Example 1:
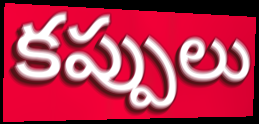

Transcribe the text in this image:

కప్పులు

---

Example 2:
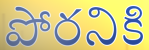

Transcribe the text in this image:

పోరనికి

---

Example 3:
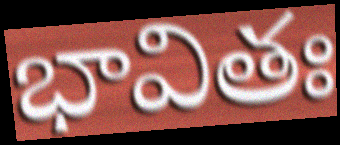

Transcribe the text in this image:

భావితః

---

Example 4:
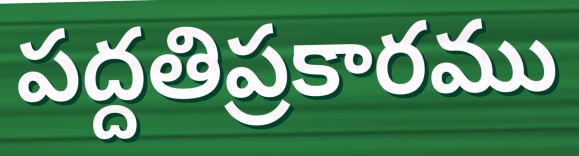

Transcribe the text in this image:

పద్దతిప్రకారము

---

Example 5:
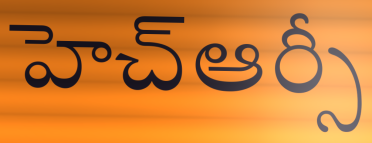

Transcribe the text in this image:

హెచ్ఆర్సీ